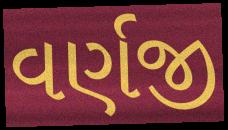
વર્ણજી